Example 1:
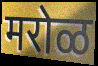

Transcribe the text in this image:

मरोळ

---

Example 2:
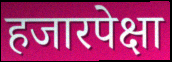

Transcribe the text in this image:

हजारपेक्षा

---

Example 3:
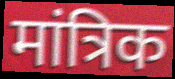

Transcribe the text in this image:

मांत्रिक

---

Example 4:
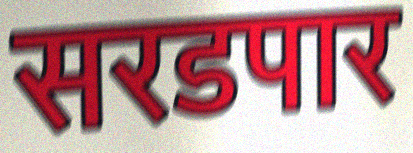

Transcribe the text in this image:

सरडपार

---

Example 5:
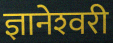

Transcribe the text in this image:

ज्ञानेश्‍वरी